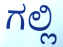
ಗಲ್ಲಿ